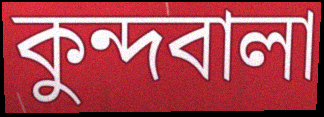
কুন্দবালা